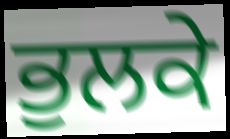
ਭੁਲਕੇ